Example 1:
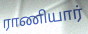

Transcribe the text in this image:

ராணியார்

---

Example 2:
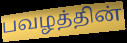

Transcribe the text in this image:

பவழத்தின்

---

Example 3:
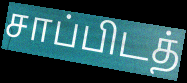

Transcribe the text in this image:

சாப்பிடத்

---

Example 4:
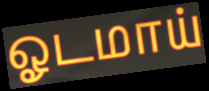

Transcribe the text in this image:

ஓடமாய்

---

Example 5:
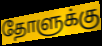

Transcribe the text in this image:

தோளுக்கு